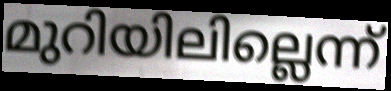
മുറിയിലില്ലെന്ന്